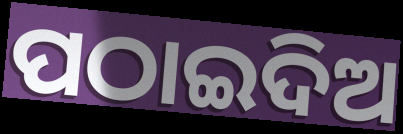
ପଠାଇଦିଅ